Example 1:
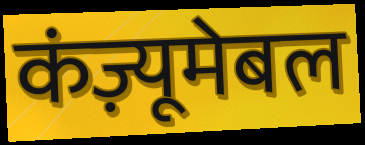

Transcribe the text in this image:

कंज़्यूमेबल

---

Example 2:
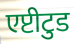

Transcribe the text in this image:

एप्टीटुड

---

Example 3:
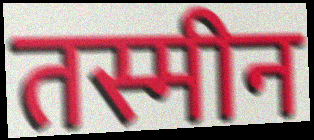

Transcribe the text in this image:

तस्मीन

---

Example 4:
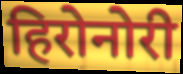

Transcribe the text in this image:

हिरोनोरी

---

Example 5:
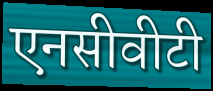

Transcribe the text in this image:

एनसीवीटी